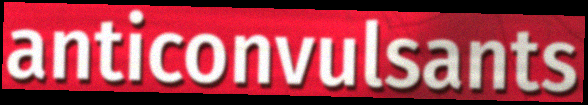
anticonvulsants